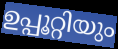
ഉപ്പൂറ്റിയും